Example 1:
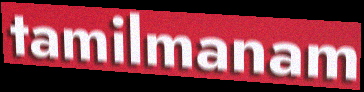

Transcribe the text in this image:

tamilmanam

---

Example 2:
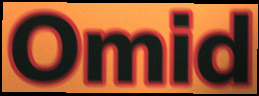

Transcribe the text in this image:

Omid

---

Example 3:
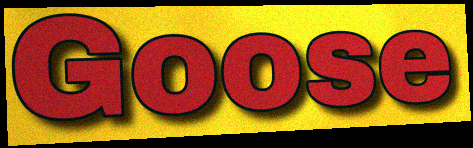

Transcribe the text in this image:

Goose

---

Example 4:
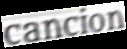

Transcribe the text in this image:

cancion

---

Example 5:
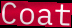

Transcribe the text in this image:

Coat